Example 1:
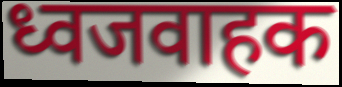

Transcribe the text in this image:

ध्वजवाहक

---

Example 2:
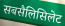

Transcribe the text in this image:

सबसैलिसिलेट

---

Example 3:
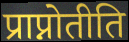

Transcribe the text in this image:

प्राप्नोतीति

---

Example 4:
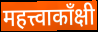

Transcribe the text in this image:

महत्त्वाकाँक्षी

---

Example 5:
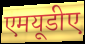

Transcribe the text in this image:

एमयूडीए